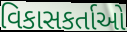
વિકાસકર્તાઓ